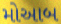
મોઆબ